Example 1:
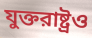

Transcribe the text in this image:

যুক্তরাষ্ট্রও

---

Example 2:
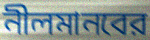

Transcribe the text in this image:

নীলমানবের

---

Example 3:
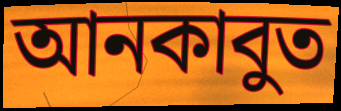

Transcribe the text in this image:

আনকাবুত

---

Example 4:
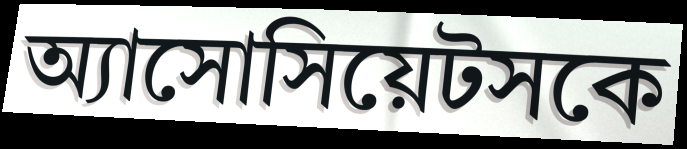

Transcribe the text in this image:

অ্যাসোসিয়েটসকে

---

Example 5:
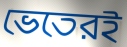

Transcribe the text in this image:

ভেতেরই